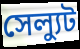
সেল্যুট